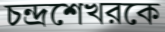
চন্দ্রশেখরকে